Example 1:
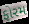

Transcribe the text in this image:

ફોરમ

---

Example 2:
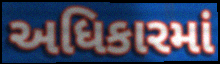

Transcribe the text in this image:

અધિકારમાં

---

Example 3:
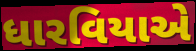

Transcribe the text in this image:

ધારવિયાએ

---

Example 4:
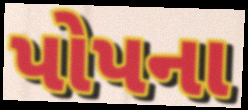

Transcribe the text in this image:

પોપના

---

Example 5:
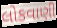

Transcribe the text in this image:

લોકવાણી